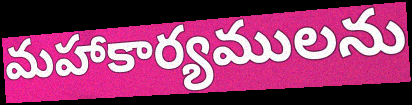
మహాకార్యములను